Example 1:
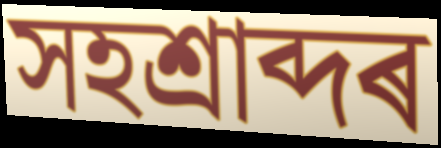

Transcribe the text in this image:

সহশ্ৰাব্দৰ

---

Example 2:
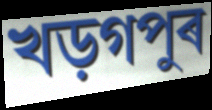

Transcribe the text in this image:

খড়গপুৰ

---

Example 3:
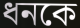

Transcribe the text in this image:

ধনকে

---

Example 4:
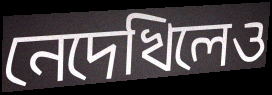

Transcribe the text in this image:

নেদেখিলেও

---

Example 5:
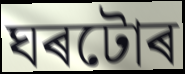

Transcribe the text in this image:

ঘৰটোৰ